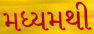
મધ્યમથી